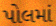
પોલમાં